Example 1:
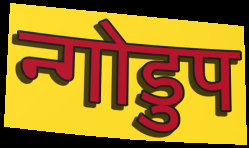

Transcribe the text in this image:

न्गोडुप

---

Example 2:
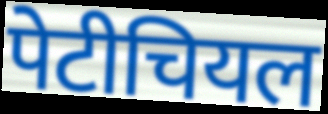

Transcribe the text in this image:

पेटीचियल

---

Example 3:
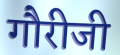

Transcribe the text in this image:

गौरीजी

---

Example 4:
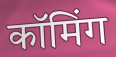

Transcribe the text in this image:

कॉमिंग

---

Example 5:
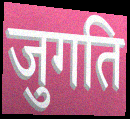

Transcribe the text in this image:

जुगति